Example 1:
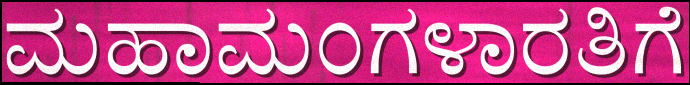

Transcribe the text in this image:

ಮಹಾಮಂಗಳಾರತಿಗೆ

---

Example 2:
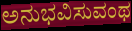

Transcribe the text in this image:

ಅನುಭವಿಸುವಂಥ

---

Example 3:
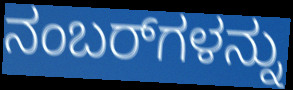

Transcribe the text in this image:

ನಂಬರ್‌ಗಳನ್ನು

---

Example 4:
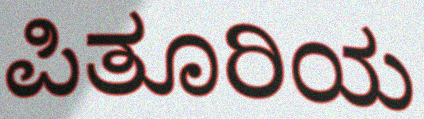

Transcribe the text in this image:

ಪಿತೂರಿಯ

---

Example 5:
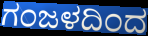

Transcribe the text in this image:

ಗಂಜಳದಿಂದ